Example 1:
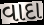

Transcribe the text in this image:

વાદા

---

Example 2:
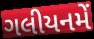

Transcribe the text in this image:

ગલીયનમેં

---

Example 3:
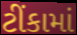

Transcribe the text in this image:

ટીંકામાં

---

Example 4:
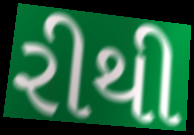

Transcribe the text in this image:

રીથી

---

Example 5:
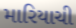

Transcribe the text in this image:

મારિયાચી